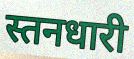
स्तनधारी